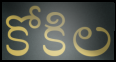
కోకిల